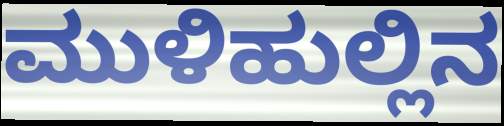
ಮುಳಿಹುಲ್ಲಿನ